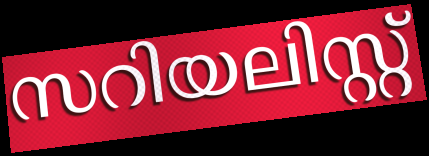
സറിയലിസ്റ്റ്